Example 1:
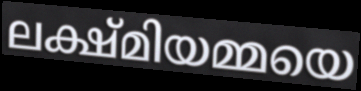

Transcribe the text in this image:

ലക്ഷ്മിയമ്മയെ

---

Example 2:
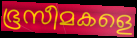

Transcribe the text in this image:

ഭൂസീമകളെ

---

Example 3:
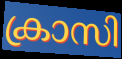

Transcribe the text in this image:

ക്രാസി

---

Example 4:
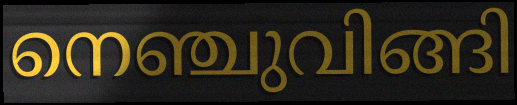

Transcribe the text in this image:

നെഞ്ചുവിങ്ങി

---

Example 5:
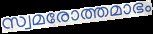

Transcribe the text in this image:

സ്വമരോത്തമാഭം